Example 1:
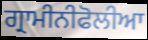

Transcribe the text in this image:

ਗ੍ਰਾਮੀਨੀਫੋਲੀਆ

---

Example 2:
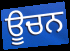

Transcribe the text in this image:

ਊਚਨ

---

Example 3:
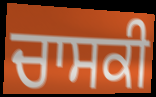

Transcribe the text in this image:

ਚਾਸਕੀ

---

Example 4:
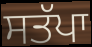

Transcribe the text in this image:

ਸਤੱਪਾ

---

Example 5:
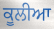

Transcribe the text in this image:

ਕੂਲੀਆ